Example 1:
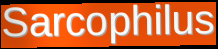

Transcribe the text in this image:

Sarcophilus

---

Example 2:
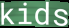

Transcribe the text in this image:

kids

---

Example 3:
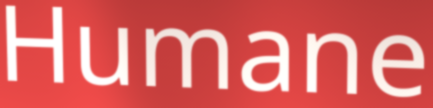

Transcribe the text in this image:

Humane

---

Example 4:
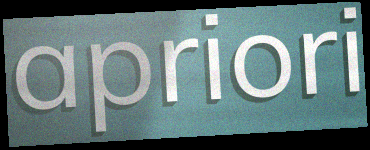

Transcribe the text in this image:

apriori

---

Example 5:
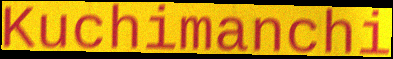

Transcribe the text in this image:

Kuchimanchi